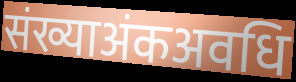
संख्याअंकअवधि